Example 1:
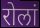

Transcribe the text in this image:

रोलां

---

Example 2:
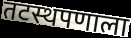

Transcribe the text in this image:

तटस्थपणाला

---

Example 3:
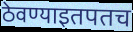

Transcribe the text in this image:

ठेवण्याइतपतच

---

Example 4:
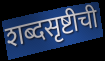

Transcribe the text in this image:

शब्दसृष्टीची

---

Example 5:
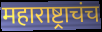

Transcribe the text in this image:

महाराष्ट्राचंच